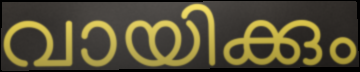
വായിക്കും